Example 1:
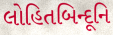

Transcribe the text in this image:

લોહિતબિન્દૂનિ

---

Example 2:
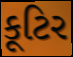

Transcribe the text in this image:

કૂટિર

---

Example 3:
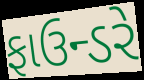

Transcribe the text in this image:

ફાઉન્ડરે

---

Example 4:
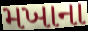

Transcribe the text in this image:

મખાના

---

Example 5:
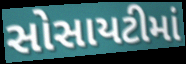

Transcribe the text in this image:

સોસાયટીમાં